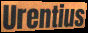
Urentius